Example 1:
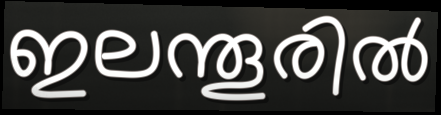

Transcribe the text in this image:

ഇലന്തൂരിൽ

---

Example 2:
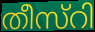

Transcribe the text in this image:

തീസ്റി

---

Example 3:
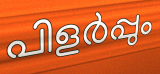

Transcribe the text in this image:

പിളർപ്പും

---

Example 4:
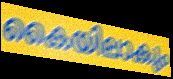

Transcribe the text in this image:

കൈയിലാകും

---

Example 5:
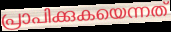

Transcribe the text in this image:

പ്രാപിക്കുകയെന്നത്